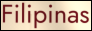
Filipinas